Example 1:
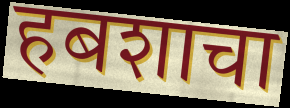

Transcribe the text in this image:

हबशाचा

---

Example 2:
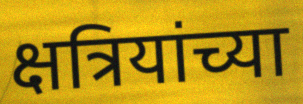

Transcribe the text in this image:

क्षत्रियांच्या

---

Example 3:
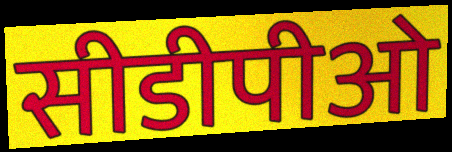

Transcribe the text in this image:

सीडीपीओ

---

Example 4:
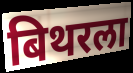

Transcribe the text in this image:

बिथरला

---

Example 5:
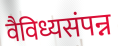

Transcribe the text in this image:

वैविध्यसंपन्न